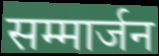
सम्मार्जन